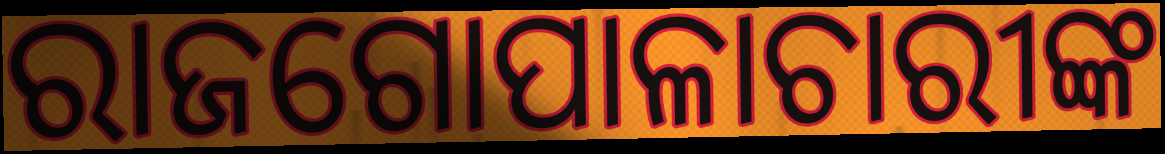
ରାଜଗୋପାଳାଚାରୀଙ୍କ